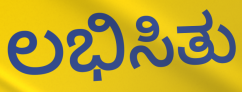
ಲಭಿಸಿತು